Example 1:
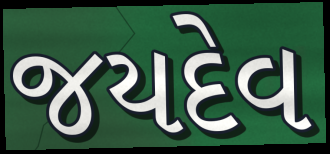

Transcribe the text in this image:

જયદેવ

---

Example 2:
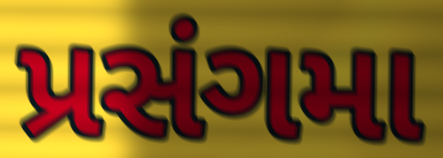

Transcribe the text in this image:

પ્રસંગમા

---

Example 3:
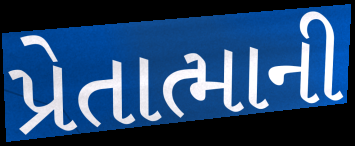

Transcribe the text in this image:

પ્રેતાત્માની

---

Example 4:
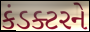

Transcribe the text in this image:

કંડક્ટરને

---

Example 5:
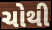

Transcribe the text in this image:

ચોથી